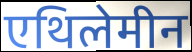
एथिलेमीन